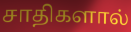
சாதிகளால்